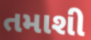
તમાશી